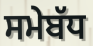
ਸਮੇਬੱਧ